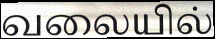
வலையில்